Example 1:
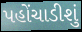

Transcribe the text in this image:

પહોંચાડીશું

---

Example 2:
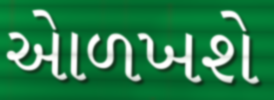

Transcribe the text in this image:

એાળખશે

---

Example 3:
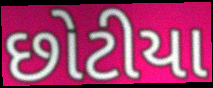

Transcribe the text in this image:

છોટીયા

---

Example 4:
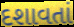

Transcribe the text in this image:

દશાવતાં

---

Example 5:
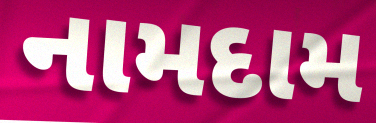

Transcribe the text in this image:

નામદામ